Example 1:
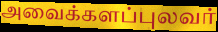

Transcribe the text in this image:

அவைக்களப்புலவர்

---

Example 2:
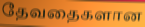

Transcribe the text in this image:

தேவதைகளான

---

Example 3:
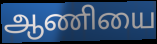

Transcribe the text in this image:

ஆணியை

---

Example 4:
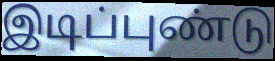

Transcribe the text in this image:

இடிப்புண்டு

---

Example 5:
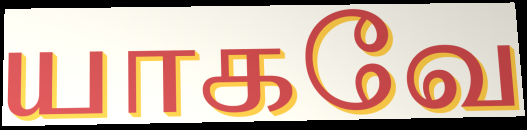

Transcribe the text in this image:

யாகவே